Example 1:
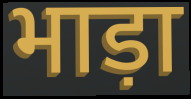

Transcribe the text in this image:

भाड़ा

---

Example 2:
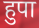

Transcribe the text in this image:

हुपा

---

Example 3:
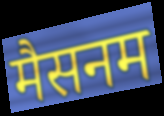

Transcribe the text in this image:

मैसनम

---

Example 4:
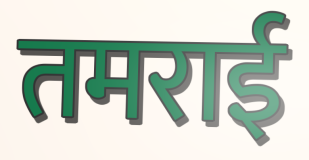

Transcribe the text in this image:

तमराई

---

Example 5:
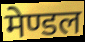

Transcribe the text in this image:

मेण्डल